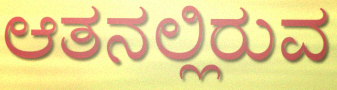
ಆತನಲ್ಲಿರುವ